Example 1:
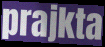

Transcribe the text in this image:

prajkta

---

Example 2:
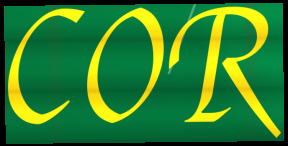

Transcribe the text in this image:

COR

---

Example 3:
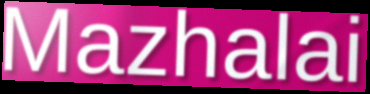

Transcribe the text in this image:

Mazhalai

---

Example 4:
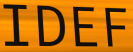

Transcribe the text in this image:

IDEF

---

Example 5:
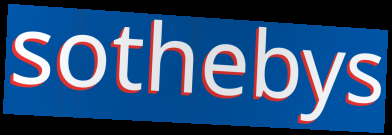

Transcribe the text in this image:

sothebys